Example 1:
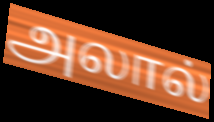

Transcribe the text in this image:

அலால்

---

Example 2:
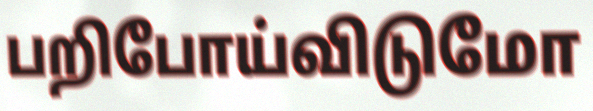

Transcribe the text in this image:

பறிபோய்விடுமோ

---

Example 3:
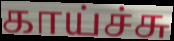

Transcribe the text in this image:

காய்ச்சு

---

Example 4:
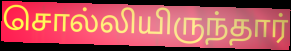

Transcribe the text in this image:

சொல்லியிருந்தார்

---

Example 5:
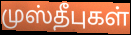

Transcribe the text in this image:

முஸ்தீபுகள்